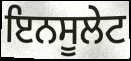
ਇਨਸੂਲੇਟ